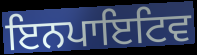
ਇਨਪਾਇਟਿਵ